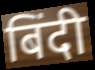
बिंदी